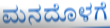
ಮನದೊಳಗೆ